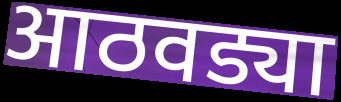
आठवड्या